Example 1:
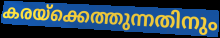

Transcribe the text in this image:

കരയ്ക്കെത്തുന്നതിനും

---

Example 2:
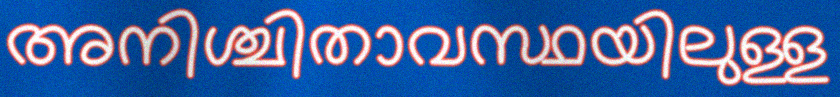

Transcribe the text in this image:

അനിശ്ചിതാവസ്ഥയിലുള്ള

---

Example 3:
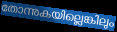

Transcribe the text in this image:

തോന്നുകയില്ലെങ്കിലും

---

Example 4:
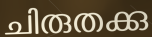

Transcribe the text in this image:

ചിരുതക്കു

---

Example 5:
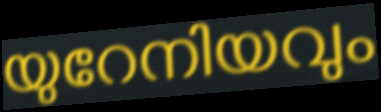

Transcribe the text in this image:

യുറേനിയവും